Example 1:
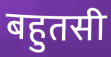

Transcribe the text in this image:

बहुतसी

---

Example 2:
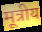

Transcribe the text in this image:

मूत्रीय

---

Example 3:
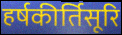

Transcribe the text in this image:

हर्षकीर्तिसूरि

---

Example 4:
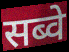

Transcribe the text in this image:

सब्वे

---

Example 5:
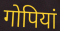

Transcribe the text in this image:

गोपियां